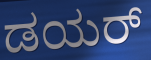
ಡಯರ್